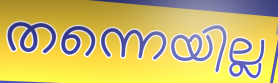
തന്നെയില്ല